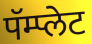
पॅम्प्लेट